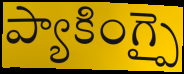
ప్యాకింగ్పై